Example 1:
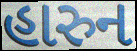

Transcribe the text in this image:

હારુન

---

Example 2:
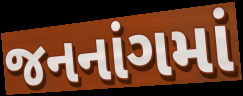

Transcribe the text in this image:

જનનાંગમાં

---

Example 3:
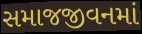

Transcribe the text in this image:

સમાજજીવનમાં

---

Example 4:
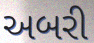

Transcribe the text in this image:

અબરી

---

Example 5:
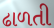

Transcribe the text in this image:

ઢાળતી